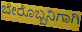
ಬೇರೊಬ್ಬನಿಗಾಗಿ